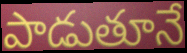
పాడుతూనే